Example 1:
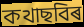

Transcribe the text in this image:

কথাছবিৰ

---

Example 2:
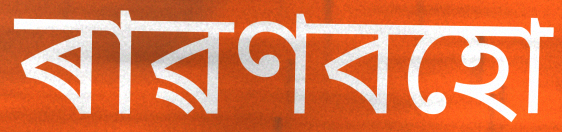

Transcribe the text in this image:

ৰাৱণবহো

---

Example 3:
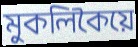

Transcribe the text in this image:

মুকলিকৈয়ে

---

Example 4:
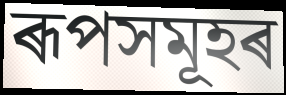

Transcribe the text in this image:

ৰূপসমূহৰ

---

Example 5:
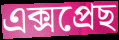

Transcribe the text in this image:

এক্সপ্ৰেছ